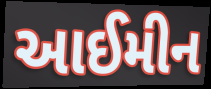
આઈમીન